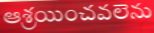
ఆశ్రయించవలెను